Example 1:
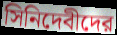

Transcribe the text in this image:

সিনিদেবীদের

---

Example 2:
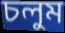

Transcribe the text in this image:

চলুম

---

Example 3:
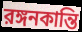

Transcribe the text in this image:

রঙ্গনকান্তি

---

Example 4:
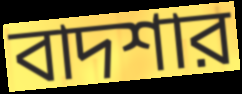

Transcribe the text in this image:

বাদশার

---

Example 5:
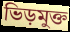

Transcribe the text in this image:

ভিড়মুক্ত